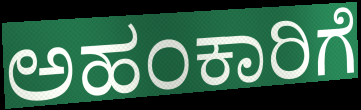
ಅಹಂಕಾರಿಗೆ